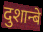
दुशान्बे